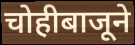
चोहीबाजूने